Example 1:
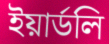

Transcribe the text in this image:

ইয়ার্ডলি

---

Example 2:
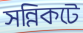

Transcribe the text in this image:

সন্নিকটে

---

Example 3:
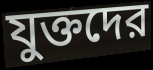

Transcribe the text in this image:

যুক্তদের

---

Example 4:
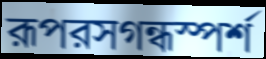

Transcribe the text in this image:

রূপরসগন্ধস্পর্শ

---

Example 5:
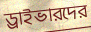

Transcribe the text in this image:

ড্রাইভারদের